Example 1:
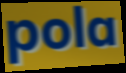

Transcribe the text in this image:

pola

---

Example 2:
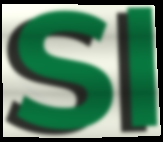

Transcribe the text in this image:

Sl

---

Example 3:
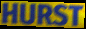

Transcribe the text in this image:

HURST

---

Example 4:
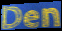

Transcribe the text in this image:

Den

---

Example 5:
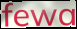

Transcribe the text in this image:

fewa